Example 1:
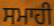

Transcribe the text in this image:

ਸਮਾਹੀ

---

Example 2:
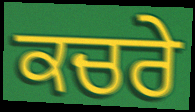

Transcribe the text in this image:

ਕਚਰੇ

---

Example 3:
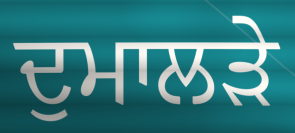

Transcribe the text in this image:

ਦੁਮਾਲੜੇ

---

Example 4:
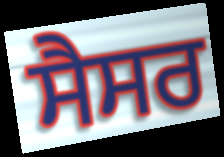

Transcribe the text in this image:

ਸੈਸਰ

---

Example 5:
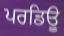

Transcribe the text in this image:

ਪਰਡਿਊ